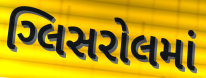
ગ્લિસરોલમાં